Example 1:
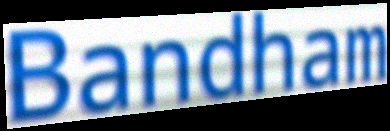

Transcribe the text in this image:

Bandham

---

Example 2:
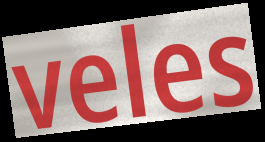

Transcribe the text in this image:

veles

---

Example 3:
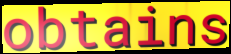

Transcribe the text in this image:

obtains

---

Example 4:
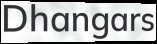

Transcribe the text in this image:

Dhangars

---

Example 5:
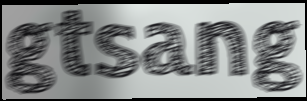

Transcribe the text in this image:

gtsang